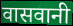
वासवानी